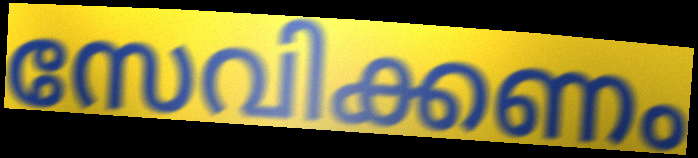
സേവിക്കണം